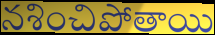
నశించిపోతాయి